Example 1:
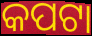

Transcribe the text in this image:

କପଟା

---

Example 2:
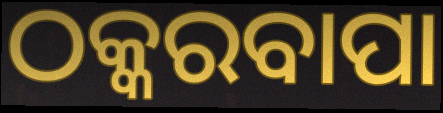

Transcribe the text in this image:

ଠକ୍କରବାପା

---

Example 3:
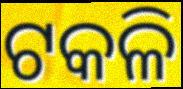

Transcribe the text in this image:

ଟକଳି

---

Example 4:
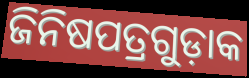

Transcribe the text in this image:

ଜିନିଷପତ୍ରଗୁଡ଼ାକ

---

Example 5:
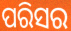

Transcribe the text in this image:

ପରିସର